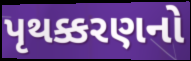
પૃથક્કરણનો